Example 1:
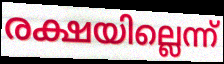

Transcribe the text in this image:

രക്ഷയില്ലെന്ന്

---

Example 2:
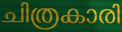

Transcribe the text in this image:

ചിത്രകാരി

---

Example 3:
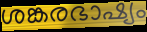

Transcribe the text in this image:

ശങ്കരഭാഷ്യം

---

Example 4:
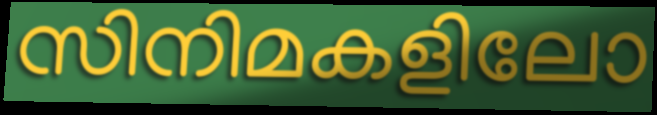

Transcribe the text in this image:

സിനിമകളിലോ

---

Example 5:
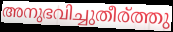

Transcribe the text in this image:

അനുഭവിച്ചുതീര്ത്തു